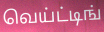
வெய்ட்டிங்